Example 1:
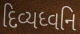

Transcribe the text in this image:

દિવ્યધ્વનિ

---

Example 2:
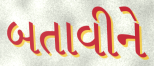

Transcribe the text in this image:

બતાવીને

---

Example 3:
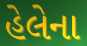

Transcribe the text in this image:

હેલેના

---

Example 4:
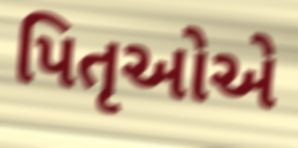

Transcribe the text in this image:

પિતૃઓેએ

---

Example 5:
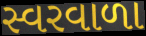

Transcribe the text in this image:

સ્વરવાળા